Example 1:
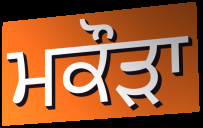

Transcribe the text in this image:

ਮਕੌੜਾ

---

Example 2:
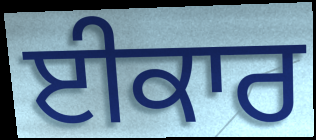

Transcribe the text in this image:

ਈਕਾਰ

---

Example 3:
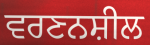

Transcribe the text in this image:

ਵਰਣਨਸ਼ੀਲ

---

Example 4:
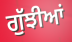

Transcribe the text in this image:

ਗੁੱਝੀਆਂ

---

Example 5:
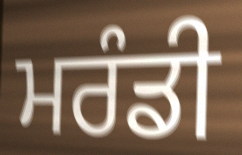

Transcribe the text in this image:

ਮਰੰਡੀ